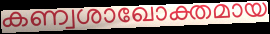
കണ്വശാഖോക്തമായ